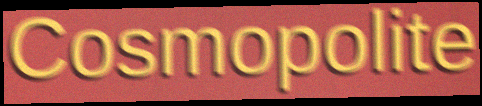
Cosmopolite